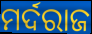
ମର୍ଦରାଜ